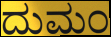
ದುಮಂ